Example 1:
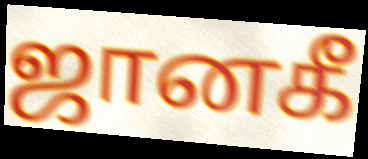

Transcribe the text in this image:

ஜானகீ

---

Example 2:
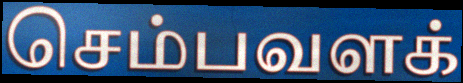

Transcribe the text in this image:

செம்பவளக்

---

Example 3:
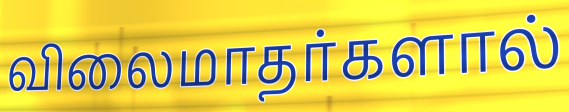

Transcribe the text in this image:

விலைமாதர்களால்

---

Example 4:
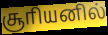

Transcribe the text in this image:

சூரியனில்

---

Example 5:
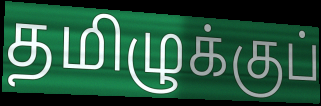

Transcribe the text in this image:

தமிழுக்குப்